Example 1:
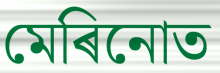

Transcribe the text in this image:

মেৰিনোত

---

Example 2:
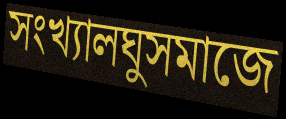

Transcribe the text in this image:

সংখ্যালঘুসমাজে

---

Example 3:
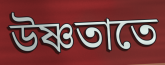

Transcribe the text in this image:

উষ্ণতাতে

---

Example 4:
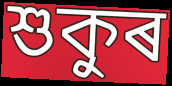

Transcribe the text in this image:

শুকুৰ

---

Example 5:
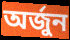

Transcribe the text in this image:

অৰ্জুন